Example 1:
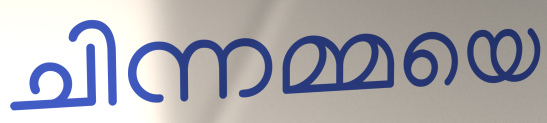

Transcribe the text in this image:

ചിന്നമ്മയെ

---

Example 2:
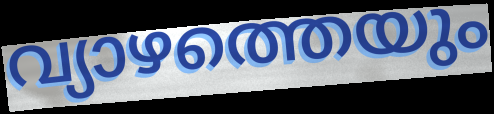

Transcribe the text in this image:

വ്യാഴത്തെയും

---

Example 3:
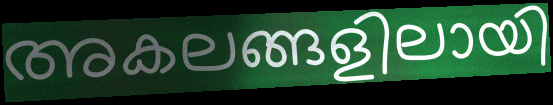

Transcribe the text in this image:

അകലങ്ങളിലായി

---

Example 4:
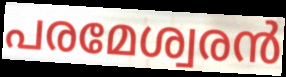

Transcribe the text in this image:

പരമേശ്വരൻ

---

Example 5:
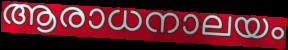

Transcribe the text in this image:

ആരാധനാലയം